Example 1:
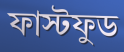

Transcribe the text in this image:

ফাস্টফুড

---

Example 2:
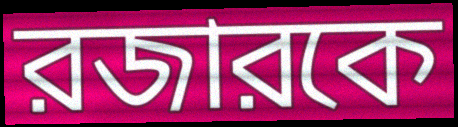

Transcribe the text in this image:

রজারকে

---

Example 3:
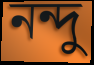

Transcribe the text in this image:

নন্দু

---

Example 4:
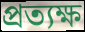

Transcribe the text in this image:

প্রত্যক্ষ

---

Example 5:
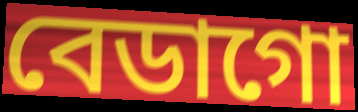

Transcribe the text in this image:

বেডাগো